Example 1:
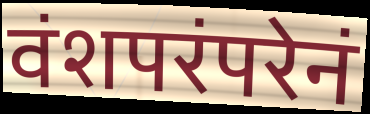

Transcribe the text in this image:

वंशपरंपरेनं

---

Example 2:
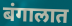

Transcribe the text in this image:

बंगालात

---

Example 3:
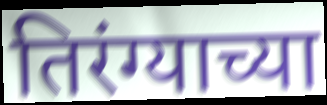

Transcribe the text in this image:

तिरंग्याच्या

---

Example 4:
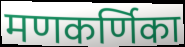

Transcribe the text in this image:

मणकर्णिका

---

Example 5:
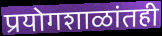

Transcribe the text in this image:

प्रयोगशाळांतही